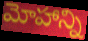
మోహాన్ని